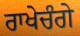
ਰਾਖੇਚੰਗੇ